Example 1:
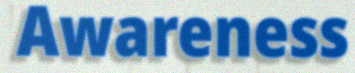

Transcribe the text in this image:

Awareness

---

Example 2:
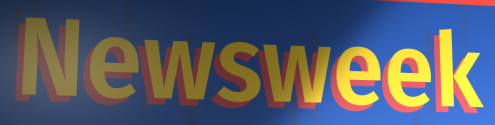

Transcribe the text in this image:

Newsweek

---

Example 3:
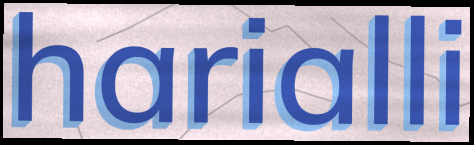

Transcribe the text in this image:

harialli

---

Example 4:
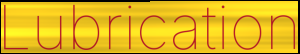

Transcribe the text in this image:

Lubrication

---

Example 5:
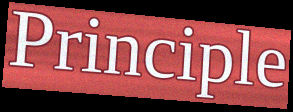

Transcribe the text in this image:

Principle